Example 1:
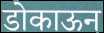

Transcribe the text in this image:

डोकाऊन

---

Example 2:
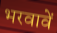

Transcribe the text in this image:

भरवावें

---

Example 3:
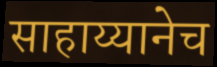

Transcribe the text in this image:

साहाय्यानेच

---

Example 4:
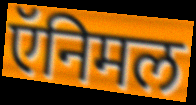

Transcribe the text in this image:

ऍनिमल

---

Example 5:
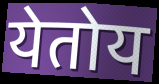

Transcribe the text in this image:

येतोय